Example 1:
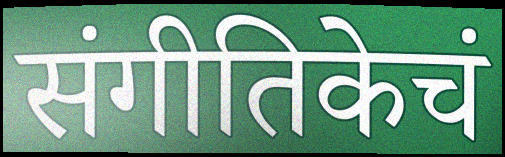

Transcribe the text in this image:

संगीतिकेचं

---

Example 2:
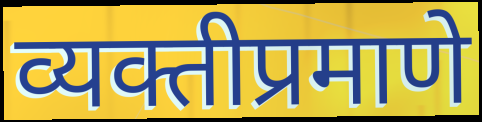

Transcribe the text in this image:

व्यक्तीप्रमाणे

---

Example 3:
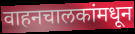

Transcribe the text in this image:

वाहनचालकांमधून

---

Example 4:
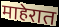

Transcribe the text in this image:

माहेरात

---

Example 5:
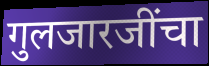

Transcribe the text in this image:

गुलजारजींचा